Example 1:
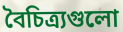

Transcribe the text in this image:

বৈচিত্র্যগুলো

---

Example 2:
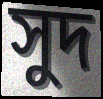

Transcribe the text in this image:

সুদ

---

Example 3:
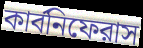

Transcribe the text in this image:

কার্বনিফেরাস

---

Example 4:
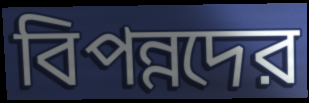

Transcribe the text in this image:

বিপন্নদের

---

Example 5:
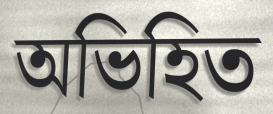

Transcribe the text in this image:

অভিহিত